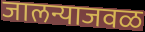
जालन्याजवळ